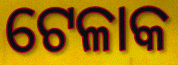
ଟେଳାକ